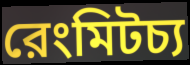
রেংমিটচ্য